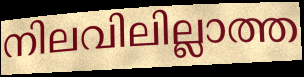
നിലവിലില്ലാത്ത